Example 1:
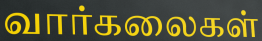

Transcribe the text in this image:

வார்கலைகள்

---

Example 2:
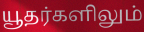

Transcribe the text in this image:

யூதர்களிலும்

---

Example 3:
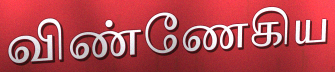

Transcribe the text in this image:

விண்ணேகிய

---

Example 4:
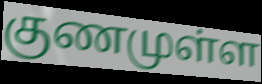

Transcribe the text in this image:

குணமுள்ள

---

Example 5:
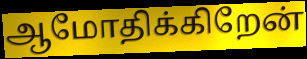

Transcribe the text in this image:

ஆமோதிக்கிறேன்